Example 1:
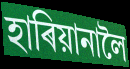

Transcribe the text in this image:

হাৰিয়ানালৈ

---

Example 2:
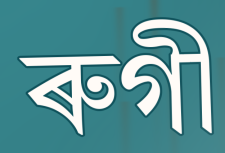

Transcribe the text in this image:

ৰুগী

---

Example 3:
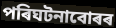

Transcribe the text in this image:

পৰিঘটনাবোৰৰ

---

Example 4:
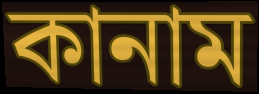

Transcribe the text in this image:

কানাম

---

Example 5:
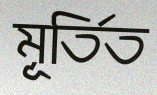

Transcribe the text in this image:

মূৰ্তিত